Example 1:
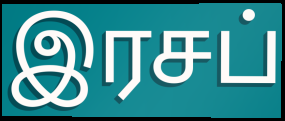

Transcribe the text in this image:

இரசப்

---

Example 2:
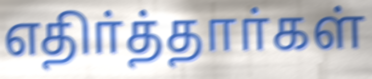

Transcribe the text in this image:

எதிர்த்தார்கள்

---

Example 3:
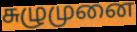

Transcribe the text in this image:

சுழுமுனை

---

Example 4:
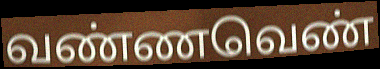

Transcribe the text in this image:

வண்ணவெண்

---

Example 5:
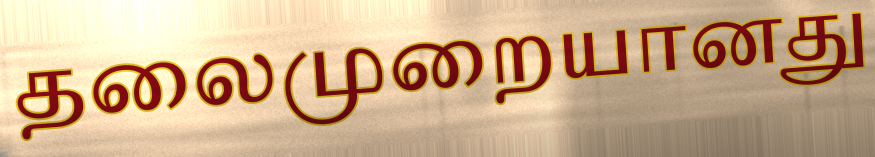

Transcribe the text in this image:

தலைமுறையானது